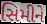
સિમીને